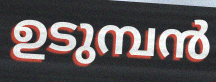
ഉടുമ്പൻ